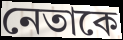
নেতাকে